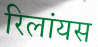
रिलांयस